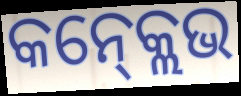
କନ୍କ୍ଲେଭ